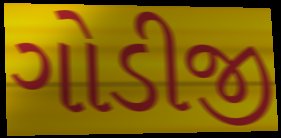
ગોડીજી